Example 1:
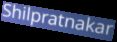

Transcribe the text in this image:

Shilpratnakar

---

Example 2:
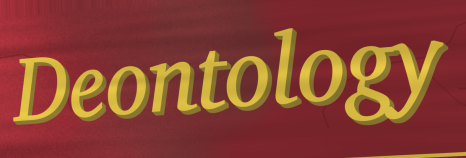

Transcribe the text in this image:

Deontology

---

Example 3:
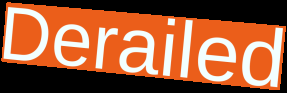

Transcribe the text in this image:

Derailed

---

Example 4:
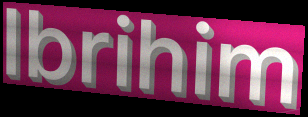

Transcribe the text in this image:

Ibrihim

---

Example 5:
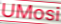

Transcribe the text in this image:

UMosi